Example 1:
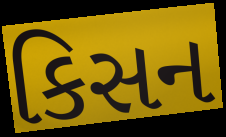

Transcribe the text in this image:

કિસન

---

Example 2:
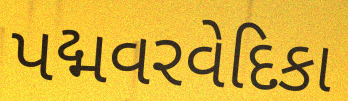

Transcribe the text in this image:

પદ્મવરવેદિકા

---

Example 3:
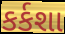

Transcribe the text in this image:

કર્કશા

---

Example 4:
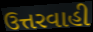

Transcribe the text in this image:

ઉત્તરવાહી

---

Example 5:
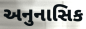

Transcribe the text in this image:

અનુનાસિક